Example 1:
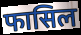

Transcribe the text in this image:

फासिल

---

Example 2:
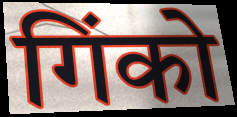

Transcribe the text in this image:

गिंको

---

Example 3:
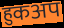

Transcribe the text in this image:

हुकअप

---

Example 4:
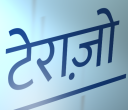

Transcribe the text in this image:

टेराज़ो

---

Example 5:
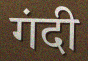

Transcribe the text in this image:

गंदी